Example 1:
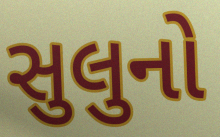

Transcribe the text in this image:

સુલુનો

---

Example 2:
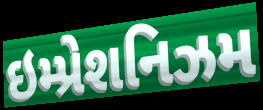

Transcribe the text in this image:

ઇમ્પ્રેશનિઝમ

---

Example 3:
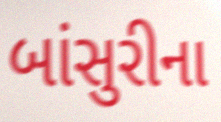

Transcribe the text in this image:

બાંસુરીના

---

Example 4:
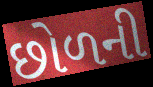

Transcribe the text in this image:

છોળની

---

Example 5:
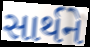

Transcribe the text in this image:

સાર્થને